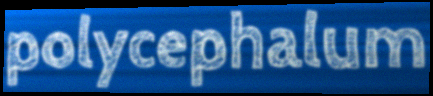
polycephalum